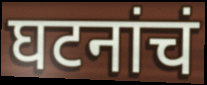
घटनांचं